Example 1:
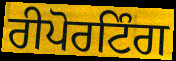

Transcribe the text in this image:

ਰੀਪੋਰਟਿੰਗ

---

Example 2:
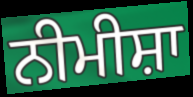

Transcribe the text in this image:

ਨੀਮੀਸ਼ਾ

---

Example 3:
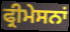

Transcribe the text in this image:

ਫ੍ਰੀਮੇਸਨਾਂ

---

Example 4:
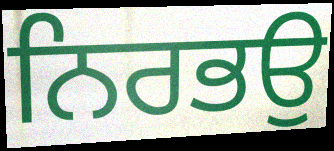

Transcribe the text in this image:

ਨਿਰਭਉ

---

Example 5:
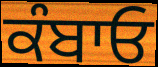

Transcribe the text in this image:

ਕੰਬਾਓ